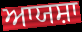
ਆਯਸ਼ਾ